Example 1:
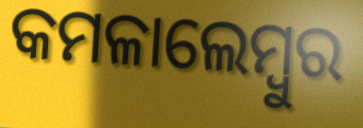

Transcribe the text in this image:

କମଳାଲେମ୍ବୁର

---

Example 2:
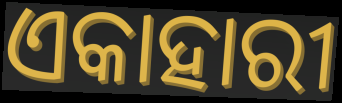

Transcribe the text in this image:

ଏକାହାରୀ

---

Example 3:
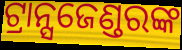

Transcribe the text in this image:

ଟ୍ରାନ୍ସଜେଣ୍ଡରଙ୍କ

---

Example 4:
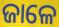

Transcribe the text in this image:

ଜାଳେ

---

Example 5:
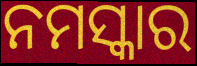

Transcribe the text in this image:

ନମସ୍କାର